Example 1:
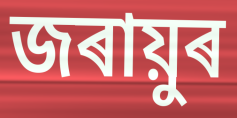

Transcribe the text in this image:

জৰায়ুৰ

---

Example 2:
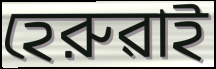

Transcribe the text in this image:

হেৰুৱাই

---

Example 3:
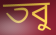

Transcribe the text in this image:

তবু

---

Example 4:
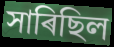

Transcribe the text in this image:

সাৰিছিল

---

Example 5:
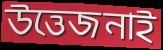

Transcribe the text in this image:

উত্তেজনাই